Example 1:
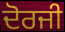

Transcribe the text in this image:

ਦੋਰਜੀ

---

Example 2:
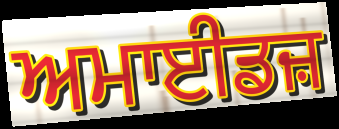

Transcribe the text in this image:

ਅਮਾਈਡਜ਼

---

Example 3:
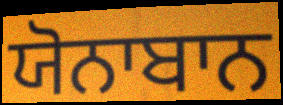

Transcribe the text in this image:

ਯੋਨਾਬਾਨ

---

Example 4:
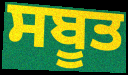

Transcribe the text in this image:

ਸਬੂਤ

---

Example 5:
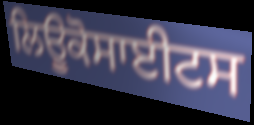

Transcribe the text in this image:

ਲਿਊਕੋਸਾਈਟਸ